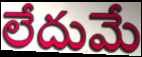
లేదుమే